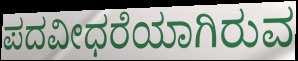
ಪದವೀಧರೆಯಾಗಿರುವ